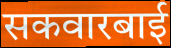
सकवारबाई